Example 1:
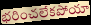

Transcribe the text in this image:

భరించలేకపోయా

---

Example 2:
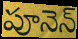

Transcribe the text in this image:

పూనెన్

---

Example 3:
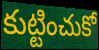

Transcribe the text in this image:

కుట్టించుకో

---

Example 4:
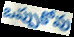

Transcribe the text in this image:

ఒప్పుకోవు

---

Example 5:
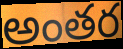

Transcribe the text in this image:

అంతర